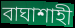
বাঘাশাহী